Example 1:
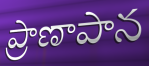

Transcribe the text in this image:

ప్రాణాపాన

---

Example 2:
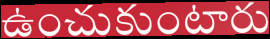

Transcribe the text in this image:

ఉంచుకుంటారు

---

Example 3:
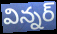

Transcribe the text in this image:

విన్నర్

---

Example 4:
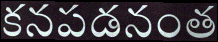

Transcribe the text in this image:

కనపడనంత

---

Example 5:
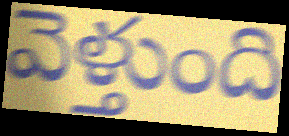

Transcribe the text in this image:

వెళ్తుంది